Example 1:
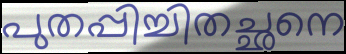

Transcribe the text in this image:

പുതപ്പിച്ചിതച്ഛനെ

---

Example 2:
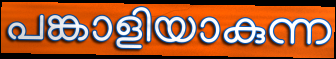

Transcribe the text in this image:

പങ്കാളിയാകുന്ന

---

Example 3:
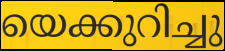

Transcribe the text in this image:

യെക്കുറിച്ചു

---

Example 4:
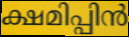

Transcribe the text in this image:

ക്ഷമിപ്പിൻ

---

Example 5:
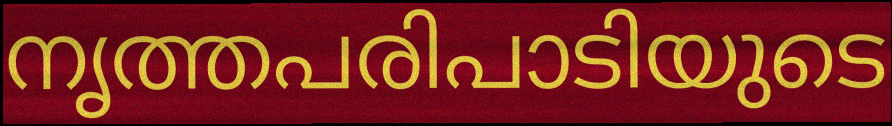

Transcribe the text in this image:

നൃത്തപരിപാടിയുടെ